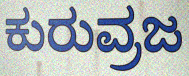
ಕುರುವ್ರಜ